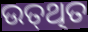
ଉତ୍‌ଥିତ